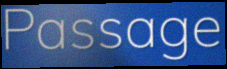
Passage